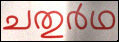
ചതുർഥ